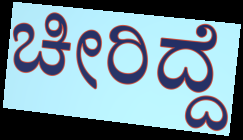
ಚೀರಿದ್ದೆ